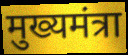
मुख्यमंत्रा